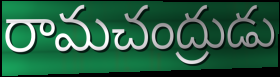
రామచంద్రుడు